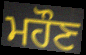
ਮਹੌਣ